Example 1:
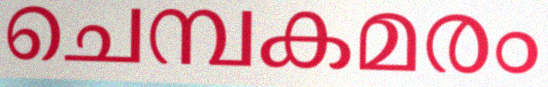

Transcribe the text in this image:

ചെമ്പകമരം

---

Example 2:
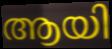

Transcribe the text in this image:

ആയി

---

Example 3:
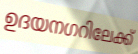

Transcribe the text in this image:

ഉദയനഗറിലേക്ക്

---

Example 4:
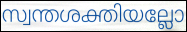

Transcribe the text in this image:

സ്വന്തശക്തിയല്ലോ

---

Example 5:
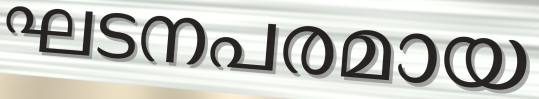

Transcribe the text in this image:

ഘടനപരമായ